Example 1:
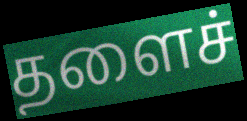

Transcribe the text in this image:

தளைச்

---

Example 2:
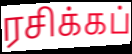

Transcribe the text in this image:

ரசிக்கப்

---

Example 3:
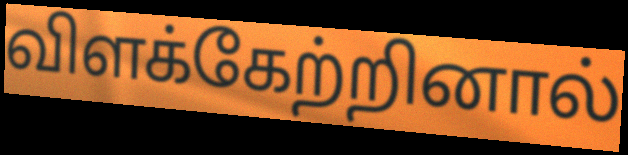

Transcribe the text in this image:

விளக்கேற்றினால்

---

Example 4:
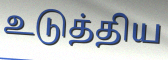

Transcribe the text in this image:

உடுத்திய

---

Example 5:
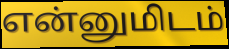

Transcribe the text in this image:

என்னுமிடம்